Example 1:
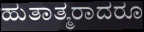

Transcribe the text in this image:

ಹುತಾತ್ಮರಾದರೂ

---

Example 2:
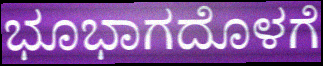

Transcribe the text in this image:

ಭೂಭಾಗದೊಳಗೆ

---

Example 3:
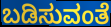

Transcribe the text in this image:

ಬಡಿಸುವಂತೆ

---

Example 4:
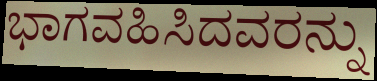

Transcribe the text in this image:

ಭಾಗವಹಿಸಿದವರನ್ನು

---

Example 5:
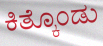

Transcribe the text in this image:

ಕಿತ್ಕೊಂಡು